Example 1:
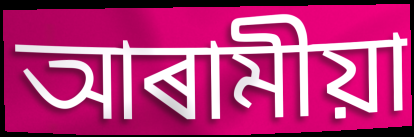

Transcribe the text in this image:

আৰামীয়া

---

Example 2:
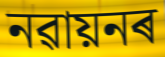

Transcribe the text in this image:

নৱায়নৰ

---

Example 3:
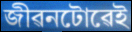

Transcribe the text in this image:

জীৱনটোৱেই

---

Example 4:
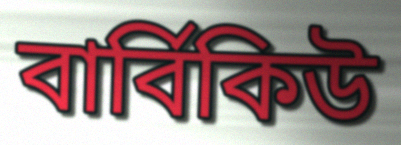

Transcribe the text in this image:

বাৰ্বিকিউ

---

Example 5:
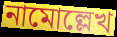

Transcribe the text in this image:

নামোল্লেখ